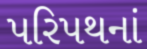
પરિપથનાં